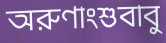
অরুণাংশুবাবু